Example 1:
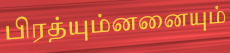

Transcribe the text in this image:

பிரத்யும்னனையும்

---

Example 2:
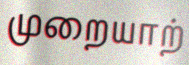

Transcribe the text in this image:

முறையாற்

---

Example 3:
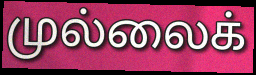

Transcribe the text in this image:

முல்லைக்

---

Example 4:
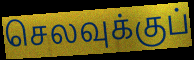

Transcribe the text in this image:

செலவுக்குப்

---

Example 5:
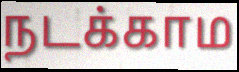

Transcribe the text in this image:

நடக்காம